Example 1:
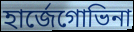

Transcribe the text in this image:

হাৰ্জেগোভিনা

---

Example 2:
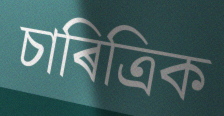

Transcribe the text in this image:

চাৰিত্ৰিক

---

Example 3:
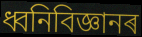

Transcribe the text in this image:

ধ্বনিবিজ্ঞানৰ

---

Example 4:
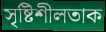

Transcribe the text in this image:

সৃষ্টিশীলতাক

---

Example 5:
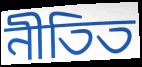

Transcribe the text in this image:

নীতিত